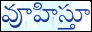
వూహిస్తూ